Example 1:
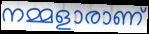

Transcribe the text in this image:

നമ്മളാരാണ്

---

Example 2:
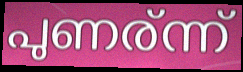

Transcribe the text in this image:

പുണര്ന്ന്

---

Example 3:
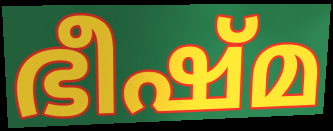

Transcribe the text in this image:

ഭീഷ്മ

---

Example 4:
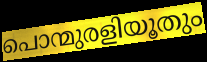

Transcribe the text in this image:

പൊന്മുരളിയൂതും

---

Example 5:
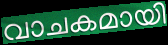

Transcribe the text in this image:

വാചകമായി